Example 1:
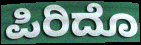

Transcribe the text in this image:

ಪಿರಿದೊ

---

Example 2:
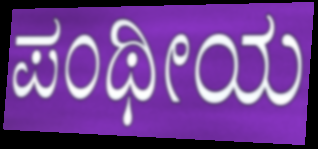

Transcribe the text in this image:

ಪಂಥೀಯ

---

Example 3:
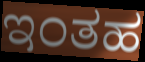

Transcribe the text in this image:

ಇಂತಹ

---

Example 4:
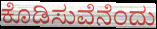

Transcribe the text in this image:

ಕೊಡಿಸುವೆನೆಂದು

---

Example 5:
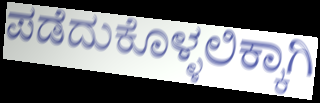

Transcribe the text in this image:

ಪಡೆದುಕೊಳ್ಳಲಿಕ್ಕಾಗಿ